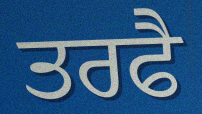
ਤਰਫੈ